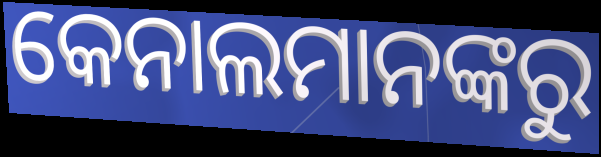
କେନାଲମାନଙ୍କରୁ